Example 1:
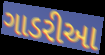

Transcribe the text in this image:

ગાડરીઆ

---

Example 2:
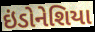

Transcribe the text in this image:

ઇંડોનેશિયા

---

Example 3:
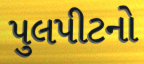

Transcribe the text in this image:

પુલપીટનો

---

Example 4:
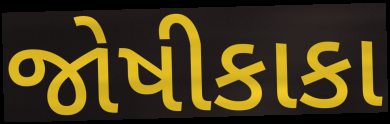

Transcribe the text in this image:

જોષીકાકા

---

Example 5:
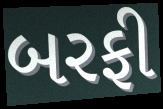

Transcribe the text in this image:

બરફી